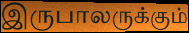
இருபாலருக்கும்